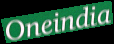
Oneindia